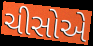
ચીસોએ